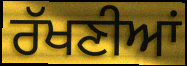
ਰੱਖਣੀਆਂ